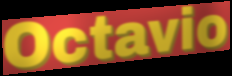
Octavio